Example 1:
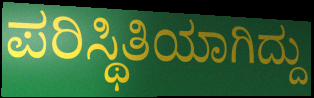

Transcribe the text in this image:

ಪರಿಸ್ಥಿತಿಯಾಗಿದ್ದು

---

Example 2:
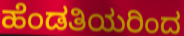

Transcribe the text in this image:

ಹೆಂಡತಿಯರಿಂದ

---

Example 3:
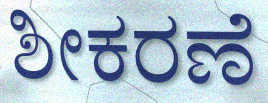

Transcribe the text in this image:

ಶೀಕರಣೆ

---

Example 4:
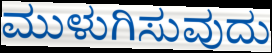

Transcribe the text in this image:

ಮುಳುಗಿಸುವುದು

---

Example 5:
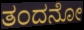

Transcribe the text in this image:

ತಂದನೋ